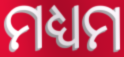
ମଧ୍ୟମ